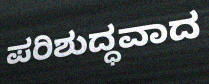
ಪರಿಶುದ್ಧವಾದ